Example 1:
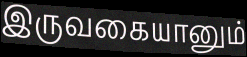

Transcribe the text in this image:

இருவகையானும்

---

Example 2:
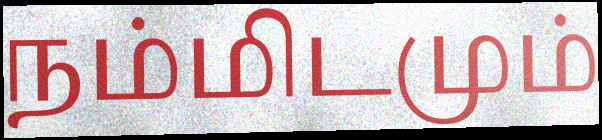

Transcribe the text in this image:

நம்மிடமும்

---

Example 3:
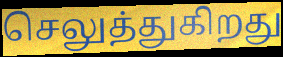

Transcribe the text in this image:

செலுத்துகிறது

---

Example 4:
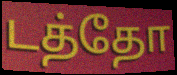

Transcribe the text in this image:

டத்தோ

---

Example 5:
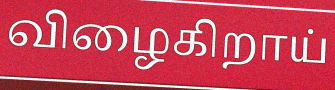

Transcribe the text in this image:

விழைகிறாய்